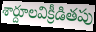
శార్దూలవిక్రీడితపు